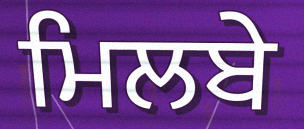
ਮਿਲਬੇ